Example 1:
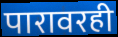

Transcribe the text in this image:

पारावरही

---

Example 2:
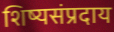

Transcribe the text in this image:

शिष्यसंप्रदाय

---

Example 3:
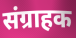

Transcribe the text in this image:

संग्राहक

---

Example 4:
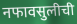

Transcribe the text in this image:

नफावसुलीची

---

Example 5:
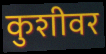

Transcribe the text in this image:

कुशीवर